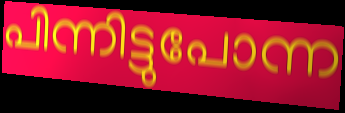
പിന്നിട്ടുപോന്ന